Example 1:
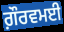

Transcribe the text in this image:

ਗ਼ੌਰਵਮਈ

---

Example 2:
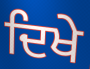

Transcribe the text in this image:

ਦਿਖੇ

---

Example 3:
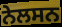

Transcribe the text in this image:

ਨੇਲਸਨ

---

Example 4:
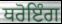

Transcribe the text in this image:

ਥਰੋਇੰਗ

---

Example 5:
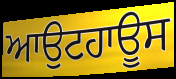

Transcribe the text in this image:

ਆਉਟਹਾਊਸ